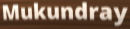
Mukundray